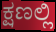
ಕ್ಷಣಲ್ಲಿ